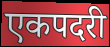
एकपदरी